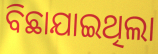
ବିଛାଯାଇଥିଲା